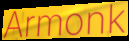
Armonk